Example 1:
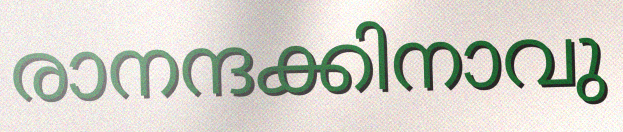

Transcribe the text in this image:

രാനന്ദക്കിനാവു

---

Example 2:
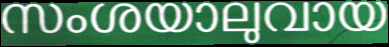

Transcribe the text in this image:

സംശയാലുവായ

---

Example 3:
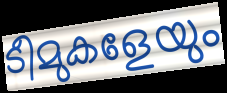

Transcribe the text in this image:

ടീമുകളേയും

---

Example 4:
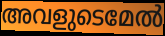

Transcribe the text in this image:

അവളുടെമേൽ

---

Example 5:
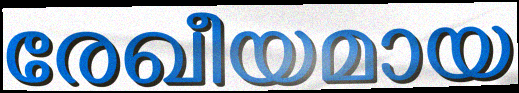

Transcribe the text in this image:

രേഖീയമായ